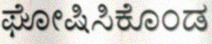
ಘೋಷಿಸಿಕೊಂಡ